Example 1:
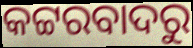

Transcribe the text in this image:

କଟ୍ଟରବାଦରୁ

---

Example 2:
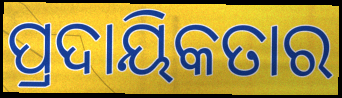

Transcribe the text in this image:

ପ୍ରଦାୟିକତାର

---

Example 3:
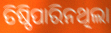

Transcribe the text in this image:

ତିଷ୍ଠିପାରିନଥିଲା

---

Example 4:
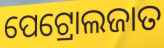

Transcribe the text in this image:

ପେଟ୍ରୋଲଜାତ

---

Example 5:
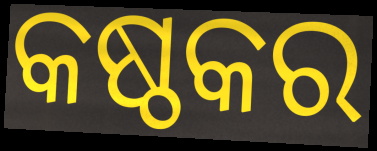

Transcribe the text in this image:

କଷ୍ଠକର